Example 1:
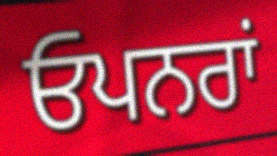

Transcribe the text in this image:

ਓਪਨਰਾਂ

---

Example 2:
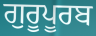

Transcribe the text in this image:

ਗੁਰੂਪੂਰਬ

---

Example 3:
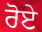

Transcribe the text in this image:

ਰੋਏ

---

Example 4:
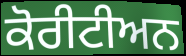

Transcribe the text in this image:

ਕੋਰੀਟੀਅਨ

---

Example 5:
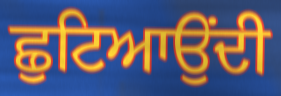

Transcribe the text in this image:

ਛੁਟਿਆਉਂਦੀ